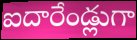
ఐదారేండ్లుగా